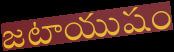
జటాయుషం